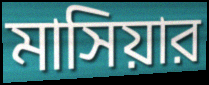
মাসিয়ার